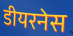
डीयरनेस